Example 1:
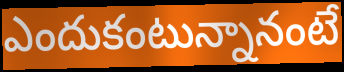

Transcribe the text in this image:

ఎందుకంటున్నానంటే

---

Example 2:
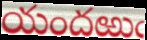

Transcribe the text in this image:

యందఱుఁ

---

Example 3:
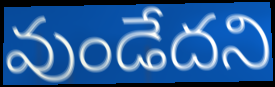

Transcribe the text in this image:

వుండేదని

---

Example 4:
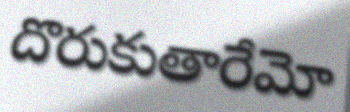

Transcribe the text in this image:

దొరుకుతారేమో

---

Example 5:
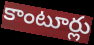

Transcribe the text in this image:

కాంటూర్లు